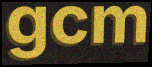
gcm